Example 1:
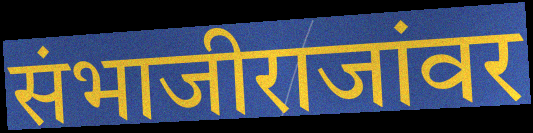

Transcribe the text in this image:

संभाजीराजांवर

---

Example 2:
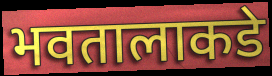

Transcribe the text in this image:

भवतालाकडे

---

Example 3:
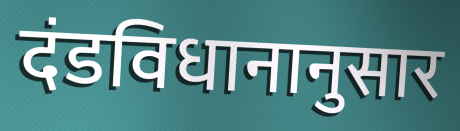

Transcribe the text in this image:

दंडविधानानुसार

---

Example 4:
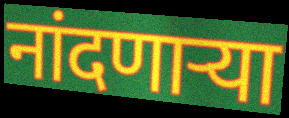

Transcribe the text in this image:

नांदणार्‍या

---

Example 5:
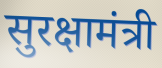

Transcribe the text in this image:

सुरक्षामंत्री